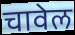
चावेल